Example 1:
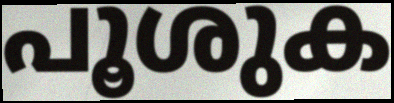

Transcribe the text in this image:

പൂശുക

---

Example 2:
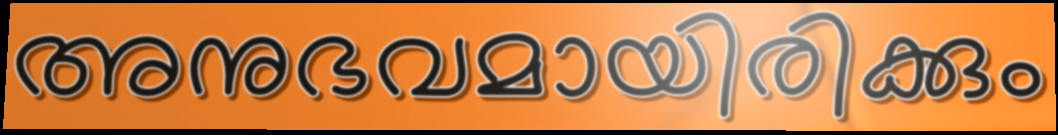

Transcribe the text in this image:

അനുഭവമായിരിക്കും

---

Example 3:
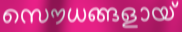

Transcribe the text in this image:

സൌധങ്ങളായ്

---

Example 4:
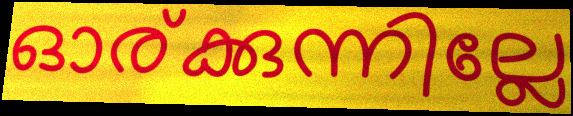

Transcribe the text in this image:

ഓര്ക്കുന്നില്ലേ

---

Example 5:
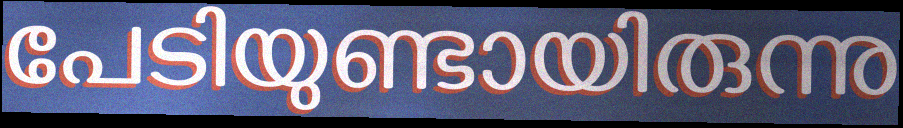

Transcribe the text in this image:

പേടിയുണ്ടായിരുന്നു